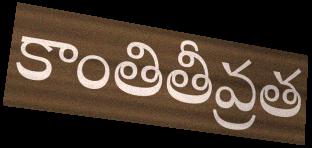
కాంతితీవ్రత